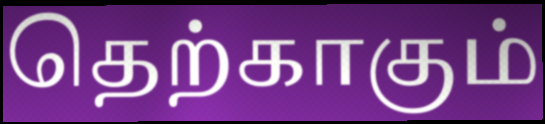
தெற்காகும்